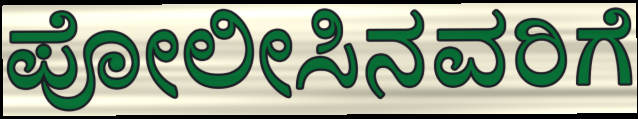
ಪೋಲೀಸಿನವರಿಗೆ